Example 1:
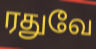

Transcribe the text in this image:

ரதுவே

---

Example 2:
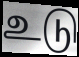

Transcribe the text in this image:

உடு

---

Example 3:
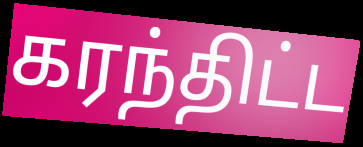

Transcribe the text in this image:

கரந்திட்ட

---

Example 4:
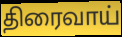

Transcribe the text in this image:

திரைவாய்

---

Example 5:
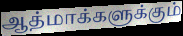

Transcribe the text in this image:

ஆத்மாக்களுக்கும்